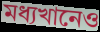
মধ্যখানেও